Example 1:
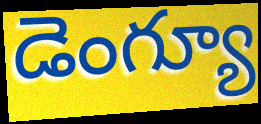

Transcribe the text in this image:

డెంగ్యూ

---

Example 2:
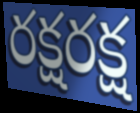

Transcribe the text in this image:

రక్షరక్ష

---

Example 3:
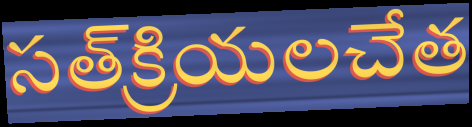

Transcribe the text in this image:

సత్‌క్రియలచేత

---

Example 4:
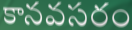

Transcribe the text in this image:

కానవసరం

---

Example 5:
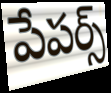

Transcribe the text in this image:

పేపర్స్